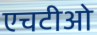
एचटीओ